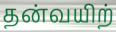
தன்வயிற்